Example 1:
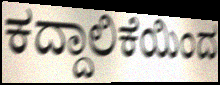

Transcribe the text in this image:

ಕದ್ದಾಲಿಕೆಯಿಂದ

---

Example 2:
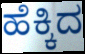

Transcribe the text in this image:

ಹೆಕ್ಕಿದ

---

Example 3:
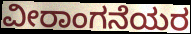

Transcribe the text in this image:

ವೀರಾಂಗನೆಯರ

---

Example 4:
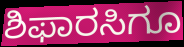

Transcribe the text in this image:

ಶಿಫಾರಸಿಗೂ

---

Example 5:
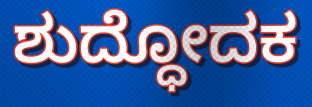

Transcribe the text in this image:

ಶುದ್ಧೋದಕ